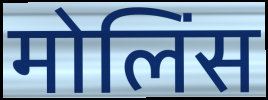
मोलिंस